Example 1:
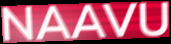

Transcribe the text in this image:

NAAVU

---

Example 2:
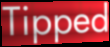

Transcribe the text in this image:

Tipped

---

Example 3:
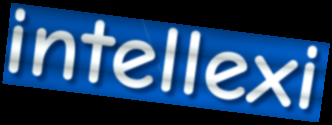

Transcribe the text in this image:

intellexi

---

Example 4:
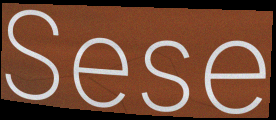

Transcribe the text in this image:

Sese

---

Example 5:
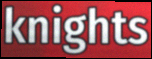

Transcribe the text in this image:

knights